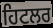
ਹਿਟਲਰ